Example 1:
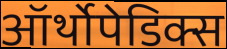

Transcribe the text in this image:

ऑर्थोपेडिक्स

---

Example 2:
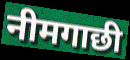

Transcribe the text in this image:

नीमगाछी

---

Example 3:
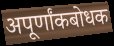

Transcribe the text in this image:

अपूर्णांकबोधक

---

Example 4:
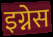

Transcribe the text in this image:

इग्नेस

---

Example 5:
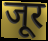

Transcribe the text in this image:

जूर